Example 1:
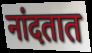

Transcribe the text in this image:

नांदतात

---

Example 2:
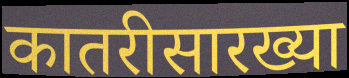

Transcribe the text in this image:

कातरीसारख्या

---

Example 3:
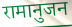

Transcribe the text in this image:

रामानुजन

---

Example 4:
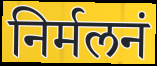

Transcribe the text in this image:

निर्मलनं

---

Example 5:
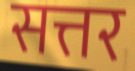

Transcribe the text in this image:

सत्तर